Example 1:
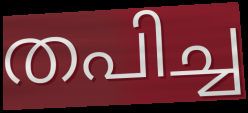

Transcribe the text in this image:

തപിച്ച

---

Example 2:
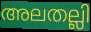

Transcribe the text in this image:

അലതല്ലി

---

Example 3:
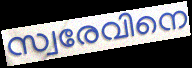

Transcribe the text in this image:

സ്വരേവിനെ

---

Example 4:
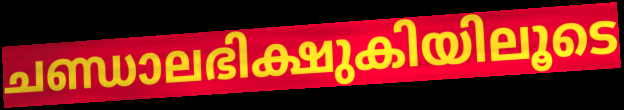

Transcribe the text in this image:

ചണ്ഡാലഭിക്ഷുകിയിലൂടെ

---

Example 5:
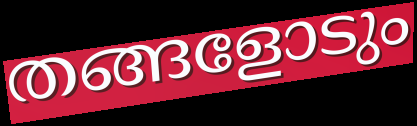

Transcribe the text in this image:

തങ്ങളോടും